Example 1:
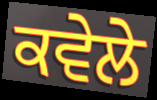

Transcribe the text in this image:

ਕਵੇਲੇ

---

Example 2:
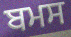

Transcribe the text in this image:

ਬਮਸ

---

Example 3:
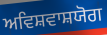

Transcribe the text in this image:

ਅਵਿਸ਼ਵਾਸ਼ਯੋਗ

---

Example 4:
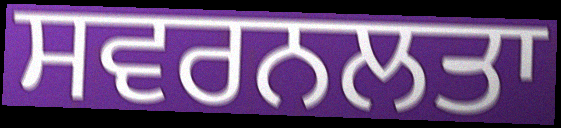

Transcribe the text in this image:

ਸਵਰਨਲਤਾ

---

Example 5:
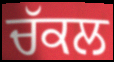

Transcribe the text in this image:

ਚੱਕਲ